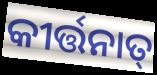
କୀର୍ତ୍ତନାତ୍